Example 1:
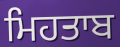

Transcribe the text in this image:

ਮਿਹਤਾਬ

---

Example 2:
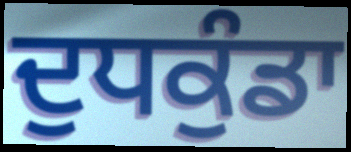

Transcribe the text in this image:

ਦੁਧਕੁੰਡਾ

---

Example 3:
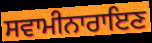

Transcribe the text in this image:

ਸਵਾਮੀਨਾਰਾਇਣ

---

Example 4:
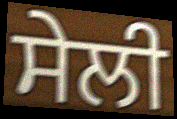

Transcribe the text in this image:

ਸੇਲੀ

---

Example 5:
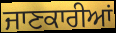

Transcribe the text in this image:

ਜਾਣਕਾਰੀਆਂ